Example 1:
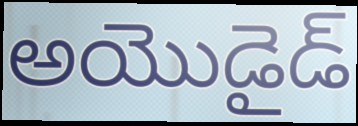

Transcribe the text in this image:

అయొడైడ్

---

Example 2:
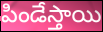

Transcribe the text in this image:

పిండేస్తాయి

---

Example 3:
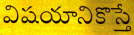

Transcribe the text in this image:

విషయానికొస్తే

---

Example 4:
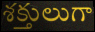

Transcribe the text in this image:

శక్తులుగా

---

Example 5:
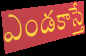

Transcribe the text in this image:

ఎండకాస్తే